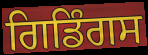
ਗਿਡਿੰਗਸ